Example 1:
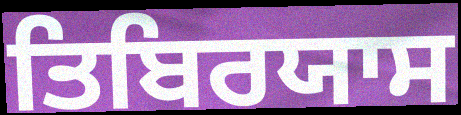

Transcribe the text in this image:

ਤਿਬਿਰਯਾਸ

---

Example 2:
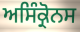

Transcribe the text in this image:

ਅਸਿੰਕ੍ਰੋਨਸ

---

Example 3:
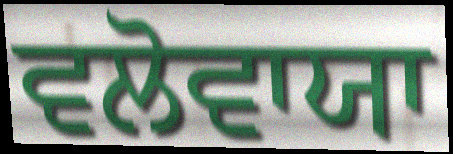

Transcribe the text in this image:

ਵਲੋਵਾਯਾ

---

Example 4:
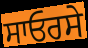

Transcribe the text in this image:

ਸਾਓਰਸੇ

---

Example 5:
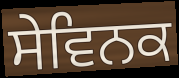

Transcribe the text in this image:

ਸੇਵਿਨਕ